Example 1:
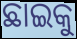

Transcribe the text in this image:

ଛାଇକୁ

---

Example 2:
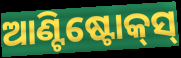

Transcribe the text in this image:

ଆଣ୍ଟିଷ୍ଟୋକ୍‍ସ୍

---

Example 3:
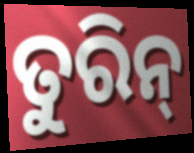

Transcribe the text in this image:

ତୁରିନ୍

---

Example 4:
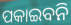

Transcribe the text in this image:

ପକାଇବନି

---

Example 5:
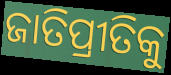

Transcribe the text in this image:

ଜାତିପ୍ରୀତିକୁ